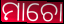
ମାଚୋ